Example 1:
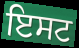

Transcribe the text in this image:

ਇਸਟ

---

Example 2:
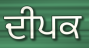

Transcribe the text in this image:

ਦੀਪਕ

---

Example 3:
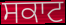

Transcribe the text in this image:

ਸਕਾਟ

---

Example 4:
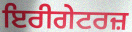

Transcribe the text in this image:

ਇਰੀਗੇਟਰਜ਼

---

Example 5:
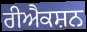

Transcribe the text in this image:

ਰੀਐਕਸ਼ਨ